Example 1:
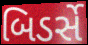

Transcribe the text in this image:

બિડર્સે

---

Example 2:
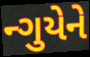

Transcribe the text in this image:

ન્ગુયેને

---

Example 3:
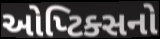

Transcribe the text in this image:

ઓપ્ટિક્સનો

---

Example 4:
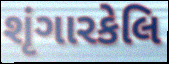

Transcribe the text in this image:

શૃંગારકેલિ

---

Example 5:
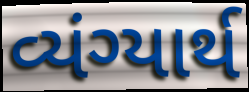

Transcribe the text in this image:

વ્યંગ્યાર્થ